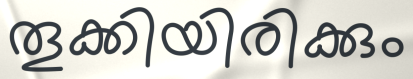
തൂക്കിയിരിക്കും